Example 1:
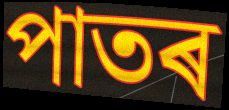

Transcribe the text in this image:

পাতৰ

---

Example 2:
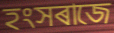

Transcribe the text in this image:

হংসৰাজে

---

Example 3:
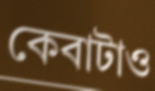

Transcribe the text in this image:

কেবাটাও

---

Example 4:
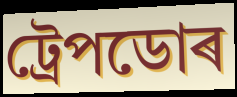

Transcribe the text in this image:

ট্ৰেপডোৰ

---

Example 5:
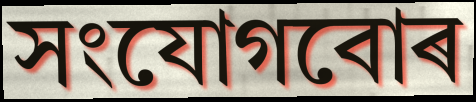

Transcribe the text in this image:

সংযোগবোৰ